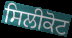
ਸਿਲੀਕੋਟ